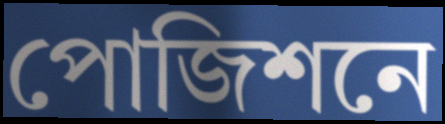
পোজিশনে